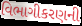
વિભાગીકરણની